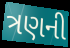
ત્રણની